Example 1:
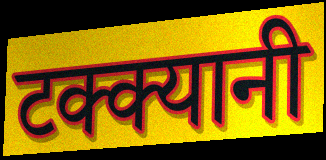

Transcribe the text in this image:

टक्क्यानी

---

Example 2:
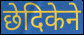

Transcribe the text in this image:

छेदिकेने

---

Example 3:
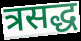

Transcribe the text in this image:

त्रसद्ध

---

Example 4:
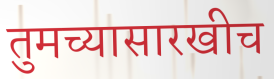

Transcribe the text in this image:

तुमच्यासारखीच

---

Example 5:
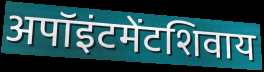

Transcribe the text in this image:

अपॉइंटमेंटशिवाय